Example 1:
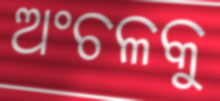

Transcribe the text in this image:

ଅଂଚଳକୁ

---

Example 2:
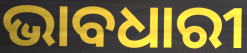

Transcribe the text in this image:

ଭାବଧାରୀ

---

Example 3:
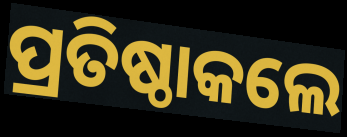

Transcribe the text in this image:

ପ୍ରତିଷ୍ଠାକଲେ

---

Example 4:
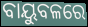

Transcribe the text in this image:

ବାୟୁବଳରେ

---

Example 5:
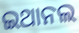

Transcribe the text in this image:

ଇଥାନଲ